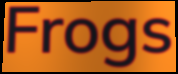
Frogs